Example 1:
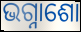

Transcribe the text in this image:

ଭଗ୍ନାଶୋ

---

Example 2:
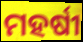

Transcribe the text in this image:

ମହର୍ଷୀ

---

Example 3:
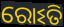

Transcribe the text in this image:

ରୋଽତି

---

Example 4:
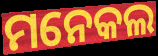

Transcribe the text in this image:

ମନେକଲ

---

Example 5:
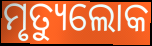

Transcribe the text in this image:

ମୃତ୍ୟୁଲୋକ